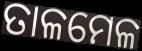
ତାଳମେଳ